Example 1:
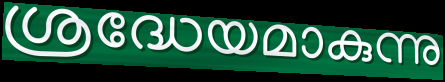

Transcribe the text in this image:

ശ്രദ്ധേയമാകുന്നു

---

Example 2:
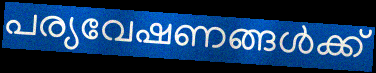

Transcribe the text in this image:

പര്യവേഷണങ്ങൾക്ക്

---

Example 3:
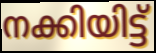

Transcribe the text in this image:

നക്കിയിട്ട്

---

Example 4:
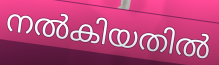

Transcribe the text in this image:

നൽകിയതിൽ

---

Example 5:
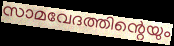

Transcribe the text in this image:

സാമവേദത്തിന്റെയും